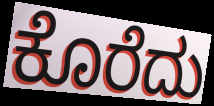
ಕೊರೆದು